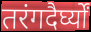
तरंगदैर्घ्यों